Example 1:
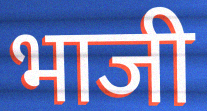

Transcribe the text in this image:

भाजी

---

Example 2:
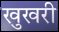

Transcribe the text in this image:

खुखरी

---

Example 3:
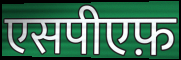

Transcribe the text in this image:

एसपीएफ़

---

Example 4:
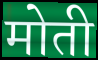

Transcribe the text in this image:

मोती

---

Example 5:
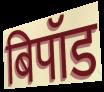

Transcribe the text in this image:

बिपॉड